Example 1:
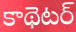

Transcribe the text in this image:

కాథెటర్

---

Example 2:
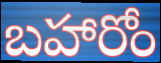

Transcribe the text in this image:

బహారోం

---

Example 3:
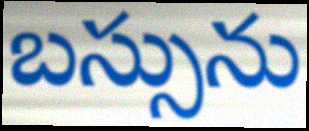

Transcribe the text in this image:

బస్సును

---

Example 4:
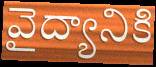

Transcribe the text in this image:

వైద్యానికి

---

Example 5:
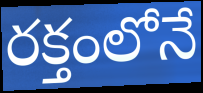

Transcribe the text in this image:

రక్తంలోనే